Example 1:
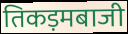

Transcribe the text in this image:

तिकड़मबाजी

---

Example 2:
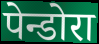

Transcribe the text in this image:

पेन्डोरा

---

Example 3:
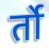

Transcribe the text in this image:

र्तो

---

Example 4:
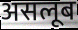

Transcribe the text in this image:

असलूब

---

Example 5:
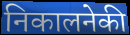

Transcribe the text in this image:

निकालनेकी